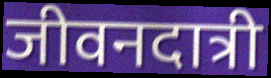
जीवनदात्री